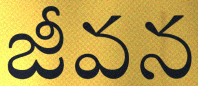
జీవన